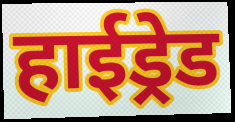
हाईड्रेड